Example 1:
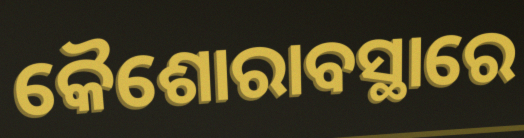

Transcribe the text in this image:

କୈଶୋରାବସ୍ଥାରେ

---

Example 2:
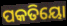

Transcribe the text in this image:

ପକତିୟୋ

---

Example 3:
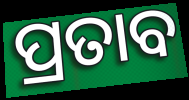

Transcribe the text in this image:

ପ୍ରତାବ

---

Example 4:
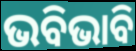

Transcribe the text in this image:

ଭବିଭାବି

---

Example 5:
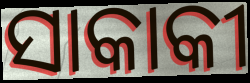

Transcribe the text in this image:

ସାକାକୀ